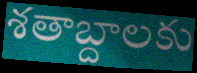
శతాబ్దాలకు